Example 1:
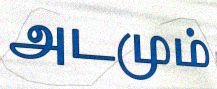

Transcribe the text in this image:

அடமும்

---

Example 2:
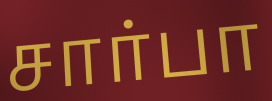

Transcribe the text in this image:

சார்பா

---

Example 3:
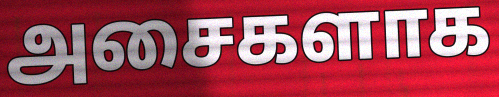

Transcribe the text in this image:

அசைகளாக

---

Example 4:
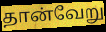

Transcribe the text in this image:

தான்வேறு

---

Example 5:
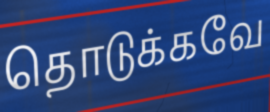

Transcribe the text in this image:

தொடுக்கவே